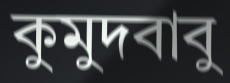
কুমুদবাবু